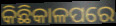
କିଛିକାଳପରେ